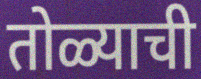
तोळ्याची